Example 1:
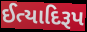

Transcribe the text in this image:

ઈત્યાદિરૂપ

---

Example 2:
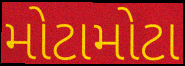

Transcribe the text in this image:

મોટામોટા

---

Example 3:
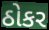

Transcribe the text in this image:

ઠોકર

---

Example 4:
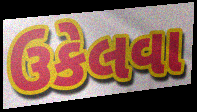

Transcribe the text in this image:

ઉકેલવા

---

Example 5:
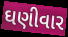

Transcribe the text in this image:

ઘણીવાર